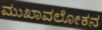
ಮುಖಾವಲೋಕನ